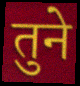
तुने